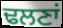
ਢਲਣਾਂ